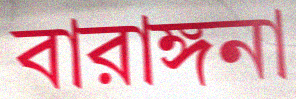
বারাঙ্গনা